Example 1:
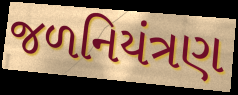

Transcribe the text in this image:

જળનિયંત્રણ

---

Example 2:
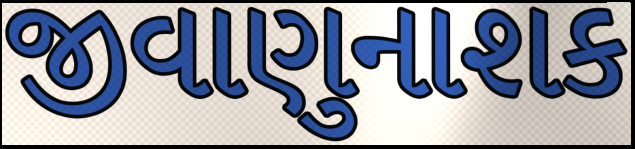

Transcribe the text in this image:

જીવાણુનાશક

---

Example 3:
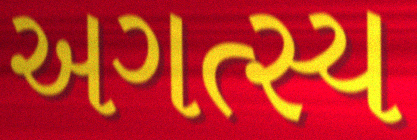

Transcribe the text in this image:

અગત્સ્ય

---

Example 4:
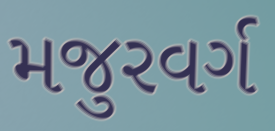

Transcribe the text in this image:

મજુરવર્ગ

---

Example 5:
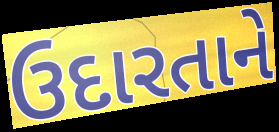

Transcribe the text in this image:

ઉદારતાને